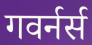
गवर्नर्स